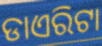
ଡାଏରିଟା